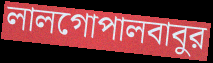
লালগোপালবাবুর